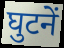
घुटनें